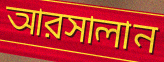
আরসালান